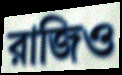
রাজিও